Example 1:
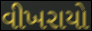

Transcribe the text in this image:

વીખરાયો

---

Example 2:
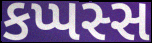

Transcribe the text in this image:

કપ્પસ્સ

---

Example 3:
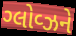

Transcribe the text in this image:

ગ્લોવ્ઝને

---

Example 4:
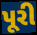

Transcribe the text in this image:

પૂરી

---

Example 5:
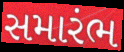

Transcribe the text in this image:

સમારંભ